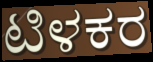
ಟಿಳಕರ